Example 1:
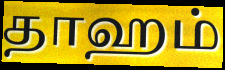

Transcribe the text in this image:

தாஹம்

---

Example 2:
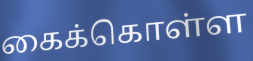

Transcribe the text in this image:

கைக்கொள்ள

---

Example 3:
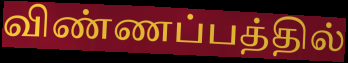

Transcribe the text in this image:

விண்ணப்பத்தில்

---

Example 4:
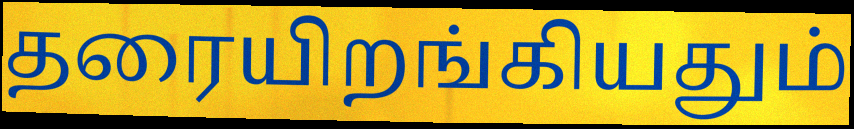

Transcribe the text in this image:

தரையிறங்கியதும்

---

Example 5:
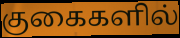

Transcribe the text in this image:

குகைகளில்